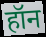
हॉन